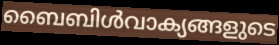
ബൈബിൾവാക്യങ്ങളുടെ